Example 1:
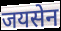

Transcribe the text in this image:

जयसेन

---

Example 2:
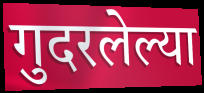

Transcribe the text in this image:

गुदरलेल्या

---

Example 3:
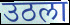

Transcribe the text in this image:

उठला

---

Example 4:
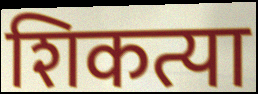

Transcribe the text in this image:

शिकत्या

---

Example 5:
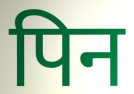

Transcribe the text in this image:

पिन